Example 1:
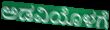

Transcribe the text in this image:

ಅಡವಿಯೊಳಗೆ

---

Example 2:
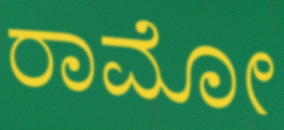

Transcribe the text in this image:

ರಾಮೋ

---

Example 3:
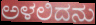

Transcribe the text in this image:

ಅಳಲಿದನು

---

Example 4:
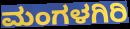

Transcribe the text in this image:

ಮಂಗಳಗಿರಿ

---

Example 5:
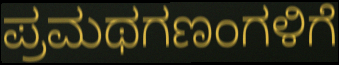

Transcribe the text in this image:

ಪ್ರಮಥಗಣಂಗಳಿಗೆ